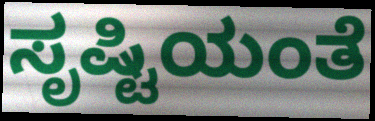
ಸೃಷ್ಟಿಯಂತೆ